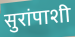
सुरांपाशी